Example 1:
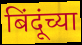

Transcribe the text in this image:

बिंदूंच्या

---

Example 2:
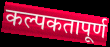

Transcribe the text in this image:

कल्पकतापूर्ण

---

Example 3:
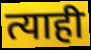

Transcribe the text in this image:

त्याही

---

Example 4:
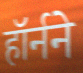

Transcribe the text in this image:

हॉर्नने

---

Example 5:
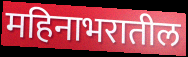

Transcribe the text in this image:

महिनाभरातील